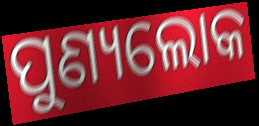
ପୁଣ୍ୟଲୋକ